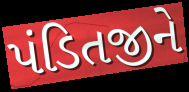
પંડિતજીને